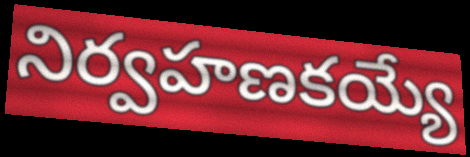
నిర్వహణకయ్యే